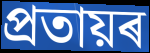
প্ৰতায়ৰ